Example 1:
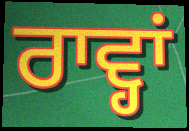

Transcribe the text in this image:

ਰਾਵ੍ਹਾਂ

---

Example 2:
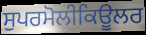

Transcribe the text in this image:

ਸੁਪਰਮੋਲੀਕਿਊਲਰ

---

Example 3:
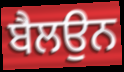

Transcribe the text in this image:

ਬੈਲਉਨ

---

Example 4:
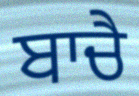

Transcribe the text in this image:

ਬਾਚੈ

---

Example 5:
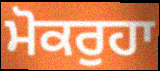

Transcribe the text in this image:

ਮੋਕਰੁਹਾ